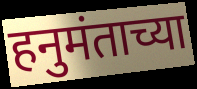
हनुमंताच्या